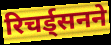
रिचर्ड्सनने